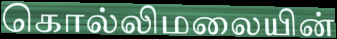
கொல்லிமலையின்